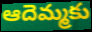
ఆదెమ్మకు